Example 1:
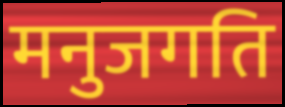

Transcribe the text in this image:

मनुजगति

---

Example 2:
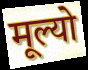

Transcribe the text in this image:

मूल्यो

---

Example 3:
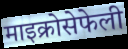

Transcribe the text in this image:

माइक्रोसेफेली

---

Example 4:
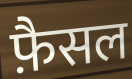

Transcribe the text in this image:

फ़ैसल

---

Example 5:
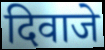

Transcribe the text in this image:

दिवाजे